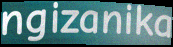
ngizanika